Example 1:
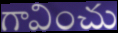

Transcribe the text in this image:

గావించు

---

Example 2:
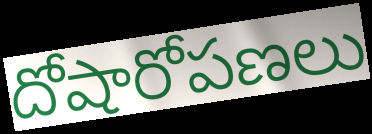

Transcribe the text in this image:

దోషారోపణలు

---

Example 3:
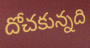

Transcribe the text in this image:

దోచకున్నది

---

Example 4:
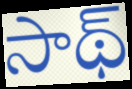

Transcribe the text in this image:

సాథ్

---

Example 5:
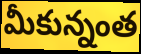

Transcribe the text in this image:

మీకున్నంత